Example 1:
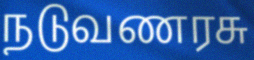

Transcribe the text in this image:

நடுவணரசு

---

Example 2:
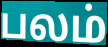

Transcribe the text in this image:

பலம்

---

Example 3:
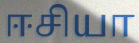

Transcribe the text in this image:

ஈசியா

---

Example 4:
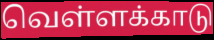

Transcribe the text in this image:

வெள்ளக்காடு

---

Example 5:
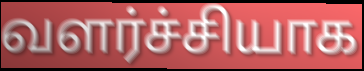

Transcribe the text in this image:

வளர்ச்சியாக